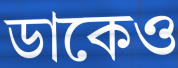
ডাকেও